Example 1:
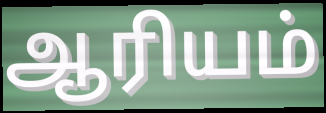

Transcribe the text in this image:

ஆரியம்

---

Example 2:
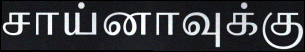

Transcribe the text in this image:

சாய்னாவுக்கு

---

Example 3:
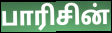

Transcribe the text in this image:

பாரிசின்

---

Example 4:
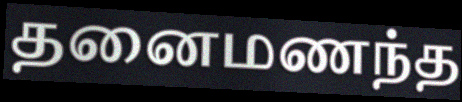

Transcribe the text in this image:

தனைமணந்த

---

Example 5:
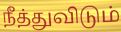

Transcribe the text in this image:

நீத்துவிடும்